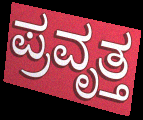
ಪ್ರವೃತ್ತ